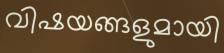
വിഷയങ്ങളുമായി